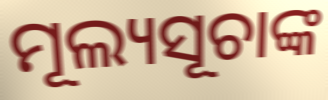
ମୂଲ୍ୟସୂଚାଙ୍କ